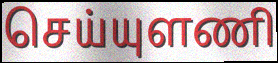
செய்யுளணி